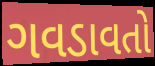
ગવડાવતો